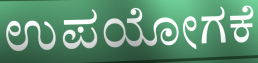
ಉಪಯೋಗಕೆ